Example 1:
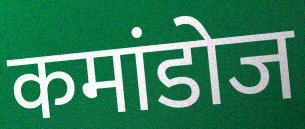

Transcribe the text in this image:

कमांडोज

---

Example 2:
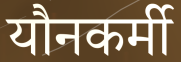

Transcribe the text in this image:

यौनकर्मी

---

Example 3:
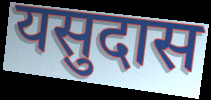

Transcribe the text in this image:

यसुदास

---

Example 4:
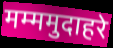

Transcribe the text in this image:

मम्ममुदाहरे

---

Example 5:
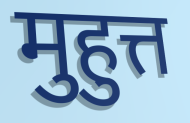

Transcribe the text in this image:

मुहुत्त